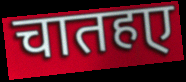
चातहए